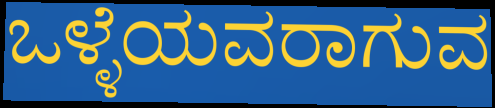
ಒಳ್ಳೆಯವರಾಗುವ